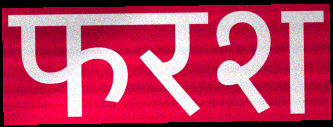
फरश